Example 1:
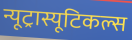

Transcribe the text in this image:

न्यूट्रास्यूटिकल्स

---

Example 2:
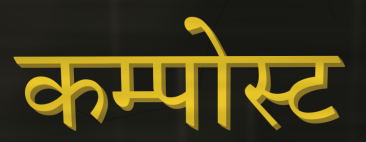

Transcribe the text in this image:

कम्पोस्ट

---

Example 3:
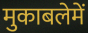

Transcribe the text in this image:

मुकाबलेमें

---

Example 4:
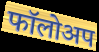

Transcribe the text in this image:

फॉलोअप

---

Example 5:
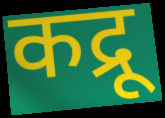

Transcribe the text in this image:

कद्रू